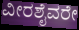
ವೀರಶೈವರೇ